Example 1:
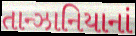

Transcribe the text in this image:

તાન્ઝાનિયાનાં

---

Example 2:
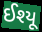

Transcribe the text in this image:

ઈશ્યૂ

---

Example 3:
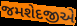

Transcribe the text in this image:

જમશેદજીએ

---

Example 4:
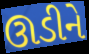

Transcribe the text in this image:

ઊડીને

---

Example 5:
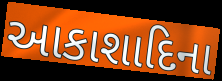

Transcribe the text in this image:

આકાશાદિના